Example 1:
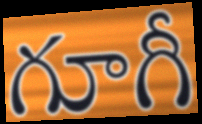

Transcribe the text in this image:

గూగీ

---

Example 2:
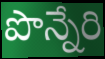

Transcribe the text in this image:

పొన్నేరి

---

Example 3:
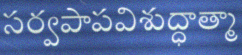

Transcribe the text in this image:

సర్వపాపవిశుద్ధాత్మా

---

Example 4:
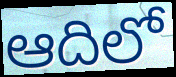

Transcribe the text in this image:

ఆదిలో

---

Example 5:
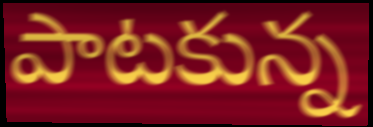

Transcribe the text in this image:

పాటకున్న